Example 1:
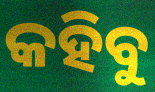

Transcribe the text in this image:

କହିବୁ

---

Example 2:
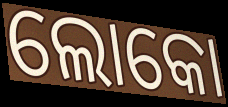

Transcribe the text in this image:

ଲୋକୋ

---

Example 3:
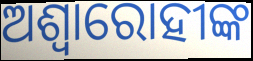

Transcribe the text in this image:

ଅଶ୍ୱାରୋହୀଙ୍କ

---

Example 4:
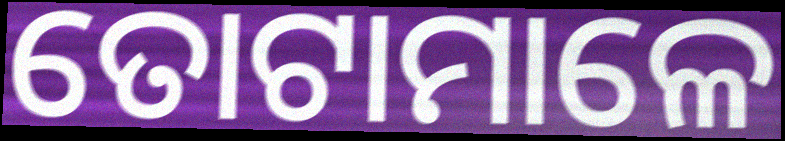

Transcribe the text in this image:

ତୋଟାମାଳେ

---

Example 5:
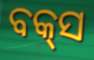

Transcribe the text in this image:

ବକ୍‌ସ